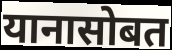
यानासोबत